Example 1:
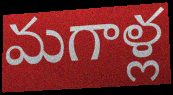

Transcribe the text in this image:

మగాళ్ల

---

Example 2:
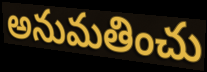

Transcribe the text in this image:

అనుమతించు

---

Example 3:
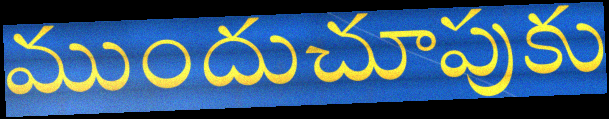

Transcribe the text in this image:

ముందుచూపుకు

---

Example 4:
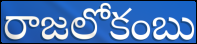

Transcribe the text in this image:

రాజలోకంబు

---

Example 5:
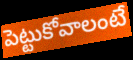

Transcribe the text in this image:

పెట్టుకోవాలంటే